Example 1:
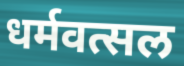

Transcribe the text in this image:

धर्मवत्सल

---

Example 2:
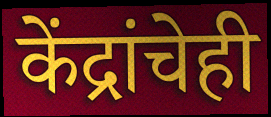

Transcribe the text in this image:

केंद्रांचेही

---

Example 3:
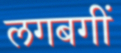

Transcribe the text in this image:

लगबगीं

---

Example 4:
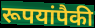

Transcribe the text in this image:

रूपयांपैकी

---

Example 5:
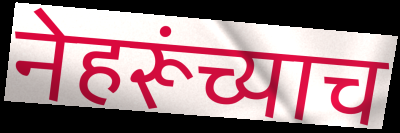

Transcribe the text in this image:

नेहरूंच्याच